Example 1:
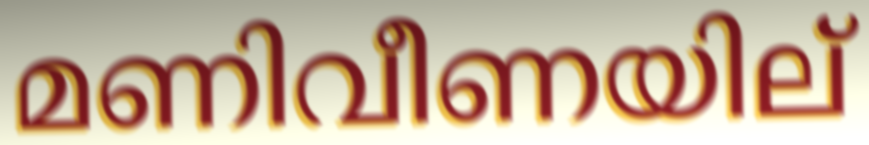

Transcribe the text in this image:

മണിവീണയില്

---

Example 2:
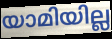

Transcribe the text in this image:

യാമിയില്ല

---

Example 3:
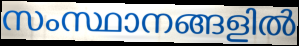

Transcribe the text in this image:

സംസ്ഥാനങ്ങളിൽ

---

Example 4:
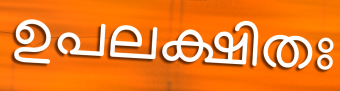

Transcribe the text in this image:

ഉപലക്ഷിതഃ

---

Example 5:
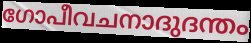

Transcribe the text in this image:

ഗോപീവചനാദുദന്തം